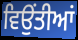
ਵਿਉਂਤੀਆਂ